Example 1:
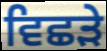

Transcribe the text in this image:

ਵਿਛੜੇ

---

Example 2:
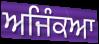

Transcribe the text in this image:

ਅਜਿੰਕਆ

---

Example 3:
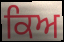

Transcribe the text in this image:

ਕਿਅ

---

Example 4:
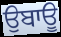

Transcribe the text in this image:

ਉਬਾਊ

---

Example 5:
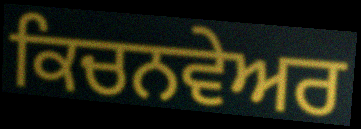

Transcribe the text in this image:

ਕਿਚਨਵੇਅਰ